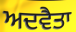
ਅਦਵੈਤਾ